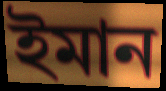
ইমান